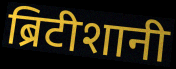
ब्रिटीशानी